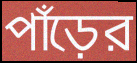
পাঁড়ের